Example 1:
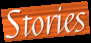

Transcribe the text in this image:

Stories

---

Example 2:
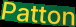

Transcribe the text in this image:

Patton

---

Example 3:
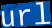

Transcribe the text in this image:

url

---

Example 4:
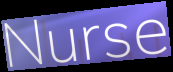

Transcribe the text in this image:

Nurse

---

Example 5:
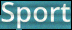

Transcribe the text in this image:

Sport